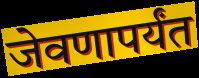
जेवणापर्यंत